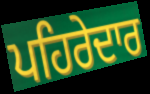
ਪਹਿਰੇਦਾਰ